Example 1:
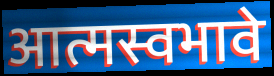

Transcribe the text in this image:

आत्मस्वभावे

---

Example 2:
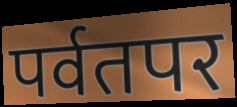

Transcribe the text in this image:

पर्वतपर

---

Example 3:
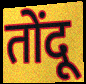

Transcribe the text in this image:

तोंदू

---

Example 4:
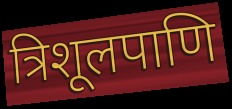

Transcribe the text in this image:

त्रिशूलपाणि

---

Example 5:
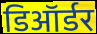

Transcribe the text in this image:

डिऑर्डर